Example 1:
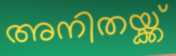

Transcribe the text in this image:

അനിതയ്ക്ക്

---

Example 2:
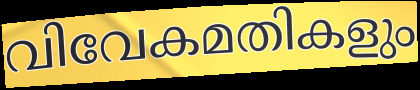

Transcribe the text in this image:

വിവേകമതികളും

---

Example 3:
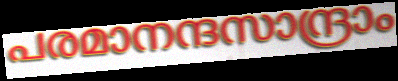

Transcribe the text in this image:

പരമാനന്ദസാന്ദ്രാം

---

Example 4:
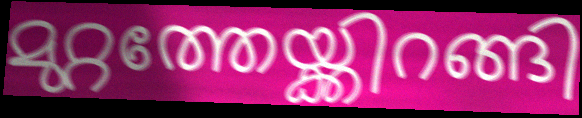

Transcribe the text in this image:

മുറ്റത്തേയ്ക്കിറങ്ങി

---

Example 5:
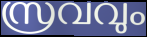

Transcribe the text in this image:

സ്രവവും